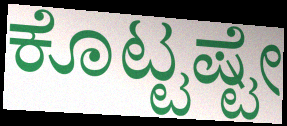
ಕೊಟ್ಟಷ್ಟೇ